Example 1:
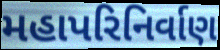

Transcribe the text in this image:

મહાપરિનિર્વાણ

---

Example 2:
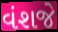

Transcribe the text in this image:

વંશજે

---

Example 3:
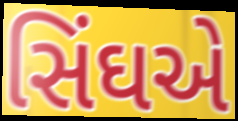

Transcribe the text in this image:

સિંઘએ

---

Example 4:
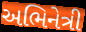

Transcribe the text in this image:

અભિનેત્રી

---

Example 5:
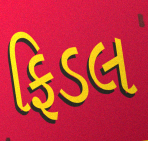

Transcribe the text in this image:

ફિડલ